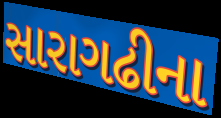
સારાગઢીના